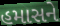
હમાસને